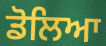
ਡੋਲਿਆ